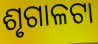
ଶୃଗାଳଟା